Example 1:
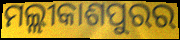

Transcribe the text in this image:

ମଲ୍ଲୀକାଶପୁରର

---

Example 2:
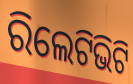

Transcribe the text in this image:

ରିଲେଟିଭିଟି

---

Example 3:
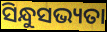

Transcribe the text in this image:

ସିନ୍ଧୁସଭ୍ୟତା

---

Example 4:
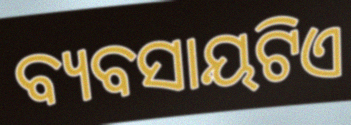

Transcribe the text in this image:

ବ୍ୟବସାୟଟିଏ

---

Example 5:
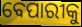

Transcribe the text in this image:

ବେପାରୀକୁ